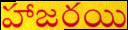
హాజరయి